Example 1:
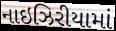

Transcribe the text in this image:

નાઇઝિરીયામાં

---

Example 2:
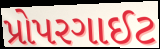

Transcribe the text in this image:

પ્રોપરગાઈટ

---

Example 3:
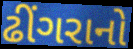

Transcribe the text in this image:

ઢીંગરાનો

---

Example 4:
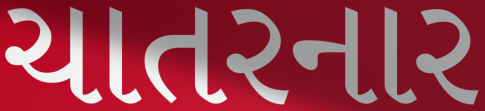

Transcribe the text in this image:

ચાતરનાર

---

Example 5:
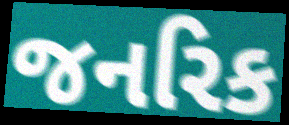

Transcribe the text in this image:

જનરિક